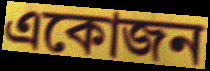
একোজন